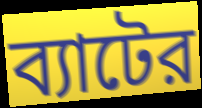
ব্যাটের